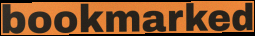
bookmarked